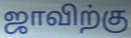
ஜாவிற்கு